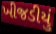
ખીજડીયું